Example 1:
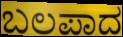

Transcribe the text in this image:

ಬಲಪಾದ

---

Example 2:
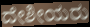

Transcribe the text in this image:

ದೇಶೀಯರು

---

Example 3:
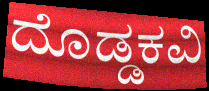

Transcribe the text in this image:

ದೊಡ್ಡಕವಿ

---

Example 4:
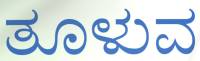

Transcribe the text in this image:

ತೂಳುವ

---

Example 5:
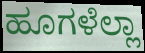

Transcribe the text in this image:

ಹೂಗಳೆಲ್ಲಾ